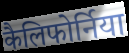
कैलिफोर्निया